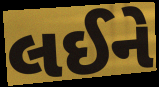
લઈને